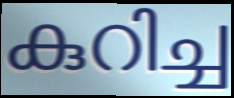
കുറിച്ച